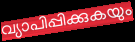
വ്യാപിപ്പിക്കുകയും